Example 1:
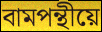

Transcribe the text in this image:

বামপন্থীয়ে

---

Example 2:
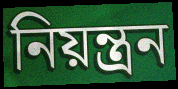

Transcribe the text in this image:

নিয়ন্ত্ৰন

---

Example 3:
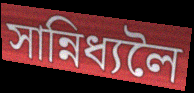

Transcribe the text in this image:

সান্নিধ্যলৈ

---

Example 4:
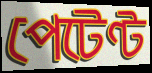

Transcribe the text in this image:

পেটেণ্ট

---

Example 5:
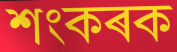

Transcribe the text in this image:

শংকৰক